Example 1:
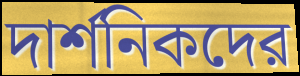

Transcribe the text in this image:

দার্শনিকদের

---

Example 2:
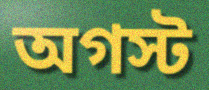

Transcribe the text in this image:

অগস্ট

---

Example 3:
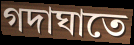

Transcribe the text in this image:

গদাঘাতে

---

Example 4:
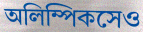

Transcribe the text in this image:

অলিম্পিকসেও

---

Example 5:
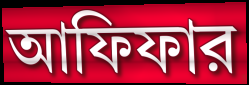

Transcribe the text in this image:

আফিফার